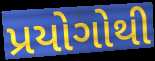
પ્રયોગોથી